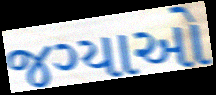
જગ્યાઓ